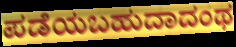
ಪಡೆಯಬಹುದಾದಂಥ